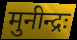
मुनीन्द्रः